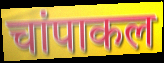
चांपाकल